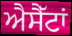
ਐਸੈੱਟਾਂ